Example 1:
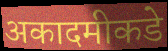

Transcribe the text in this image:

अकादमीकडे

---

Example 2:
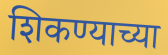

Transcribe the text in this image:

शिकण्याच्या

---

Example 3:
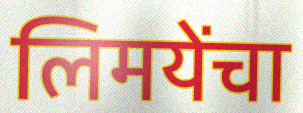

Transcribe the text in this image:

लिमयेंचा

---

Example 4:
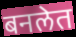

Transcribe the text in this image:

बनलेत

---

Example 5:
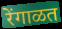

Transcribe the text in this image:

रेंगाळत